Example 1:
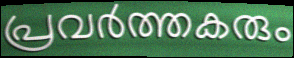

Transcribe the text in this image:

പ്രവർത്തകരും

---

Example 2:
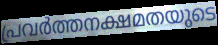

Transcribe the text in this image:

പ്രവർത്തനക്ഷമതയുടെ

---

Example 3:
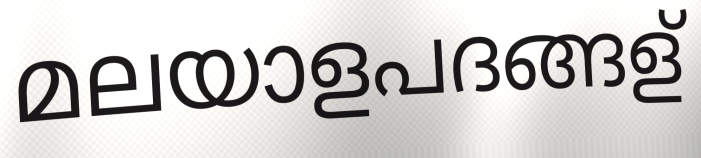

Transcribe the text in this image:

മലയാളപദങ്ങള്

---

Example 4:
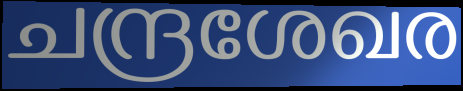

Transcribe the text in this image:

ചന്ദ്രശേഖര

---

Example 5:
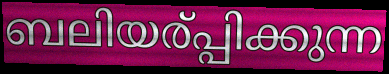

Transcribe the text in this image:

ബലിയര്പ്പിക്കുന്ന